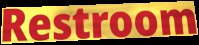
Restroom